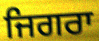
ਜਿਗਰਾ